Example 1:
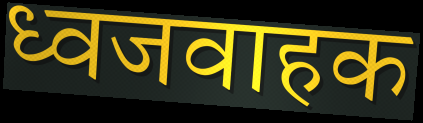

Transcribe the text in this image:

ध्वजवाहक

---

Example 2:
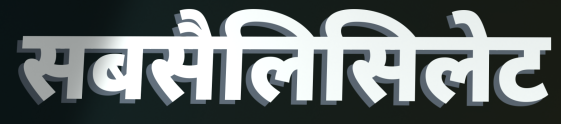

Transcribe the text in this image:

सबसैलिसिलेट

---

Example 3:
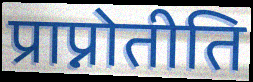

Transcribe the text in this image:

प्राप्नोतीति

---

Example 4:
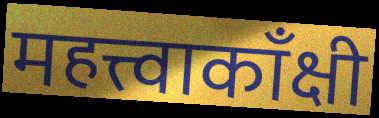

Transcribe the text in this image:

महत्त्वाकाँक्षी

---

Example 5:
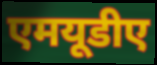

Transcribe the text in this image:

एमयूडीए